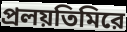
প্রলয়তিমিরে